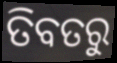
ତିବତରୁ